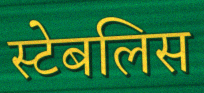
स्टेबलिस